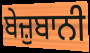
ਬੇਜ਼ੁਬਾਨੀ